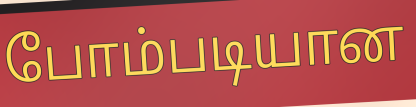
போம்படியான